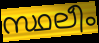
സ്ഥലീം